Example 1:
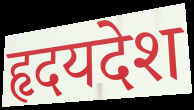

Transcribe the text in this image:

हृदयदेश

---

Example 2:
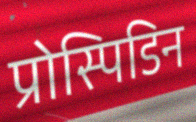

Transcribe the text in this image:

प्रोस्पिडिन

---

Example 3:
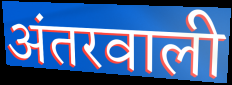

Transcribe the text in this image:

अंतरवाली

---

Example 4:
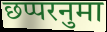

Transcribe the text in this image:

छप्परनुमा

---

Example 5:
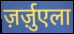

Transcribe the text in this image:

ज़र्ज़ुएला